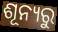
ଶୂନ୍ୟରୁ